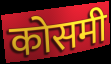
कोसमी